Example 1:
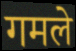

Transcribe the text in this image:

गमले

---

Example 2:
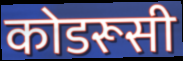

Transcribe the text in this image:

कोडरूसी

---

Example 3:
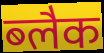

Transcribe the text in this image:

ब्‍लैक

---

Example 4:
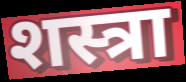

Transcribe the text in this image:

शस्त्रा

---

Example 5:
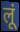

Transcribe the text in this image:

लूं